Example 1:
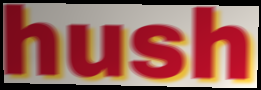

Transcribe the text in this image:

hush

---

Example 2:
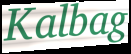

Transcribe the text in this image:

Kalbag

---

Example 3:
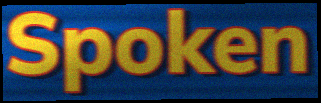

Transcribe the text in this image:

Spoken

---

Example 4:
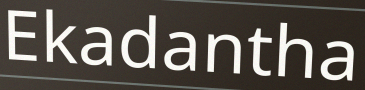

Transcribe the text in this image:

Ekadantha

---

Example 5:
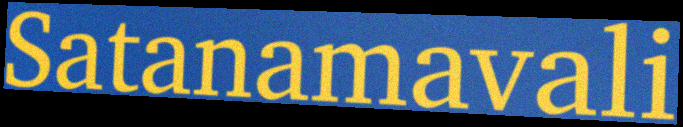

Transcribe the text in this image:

Satanamavali